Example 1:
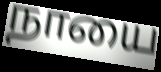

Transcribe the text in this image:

நாயை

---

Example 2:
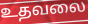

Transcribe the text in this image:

உதவலை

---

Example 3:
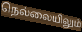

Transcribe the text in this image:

நெல்லையிலும்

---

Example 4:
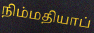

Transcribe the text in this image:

நிம்மதியாப்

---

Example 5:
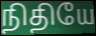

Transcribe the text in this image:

நிதியே